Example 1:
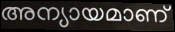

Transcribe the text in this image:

അന്യായമാണ്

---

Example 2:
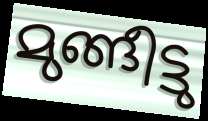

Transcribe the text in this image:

മുങ്ങീട്ടു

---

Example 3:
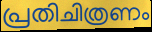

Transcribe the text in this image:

പ്രതിചിത്രണം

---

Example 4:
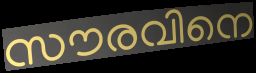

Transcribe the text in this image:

സൗരവിനെ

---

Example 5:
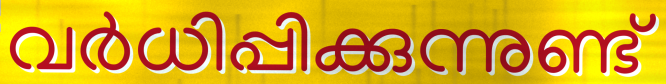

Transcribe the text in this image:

വർധിപ്പിക്കുന്നുണ്ട്